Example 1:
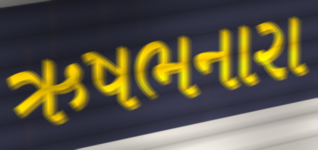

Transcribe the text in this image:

ઋષભનારા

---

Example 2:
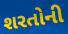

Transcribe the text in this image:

શરતોની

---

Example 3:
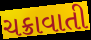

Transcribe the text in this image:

ચક્રાવાતી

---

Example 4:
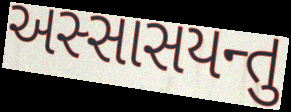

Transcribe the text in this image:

અસ્સાસયન્તુ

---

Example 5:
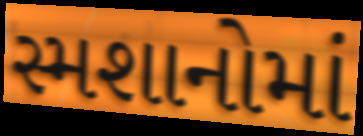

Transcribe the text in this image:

સ્મશાનોમાં